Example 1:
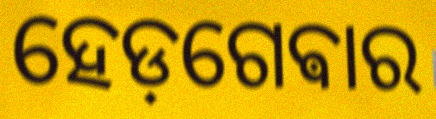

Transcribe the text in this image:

ହେଡ଼ଗେଵାର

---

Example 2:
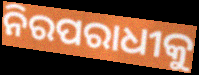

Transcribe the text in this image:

ନିରପରାଧୀକୁ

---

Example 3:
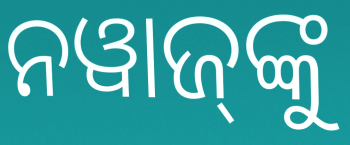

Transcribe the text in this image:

ନୱାଜ୍‍ଙ୍କୁ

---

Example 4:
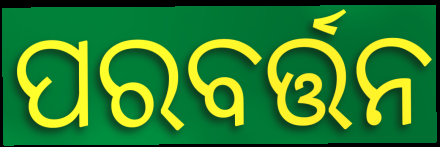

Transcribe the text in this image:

ପରବର୍ତ୍ତନ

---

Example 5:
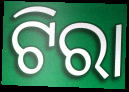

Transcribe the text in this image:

ଟିରା